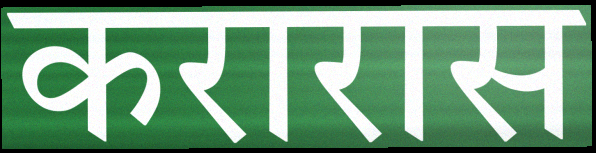
करारास